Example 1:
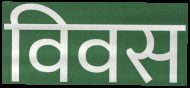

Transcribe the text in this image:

विवस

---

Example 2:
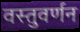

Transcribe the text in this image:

वस्तुवर्णन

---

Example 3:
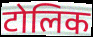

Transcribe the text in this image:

टोलिक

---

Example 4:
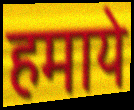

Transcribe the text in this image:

हमाये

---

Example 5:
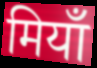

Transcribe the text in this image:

मियाँ